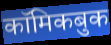
कॉमिकबुक